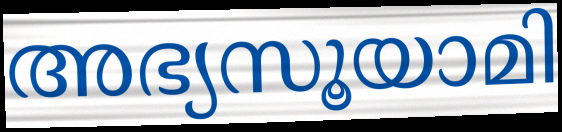
അഭ്യസൂയാമി